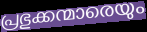
പ്രഭുക്കന്മാരെയും